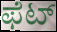
ಫೆಟ್